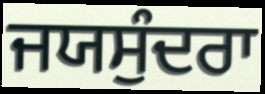
ਜਯਸੁੰਦਰਾ